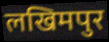
लखिमपुर